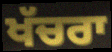
ਖੱਚਰਾ